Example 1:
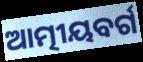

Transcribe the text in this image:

ଆତ୍ମୀୟବର୍ଗ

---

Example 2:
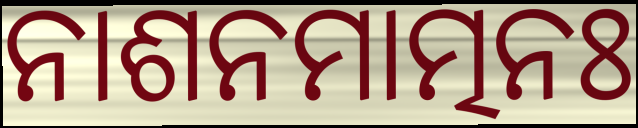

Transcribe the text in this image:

ନାଶନମାତ୍ମନଃ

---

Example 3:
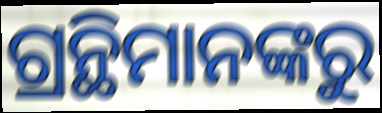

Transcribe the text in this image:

ଗ୍ରନ୍ଥିମାନଙ୍କରୁ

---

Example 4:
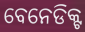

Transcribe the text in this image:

ବେନେଡିକ୍ଟ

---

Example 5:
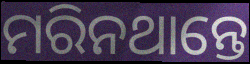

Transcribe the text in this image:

ମରିନଥାନ୍ତେ